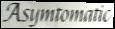
Asymtomatic